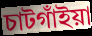
চাটগাঁইয়া